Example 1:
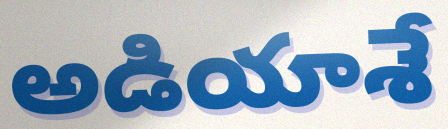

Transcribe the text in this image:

అడియాశే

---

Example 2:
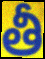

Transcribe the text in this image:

తీ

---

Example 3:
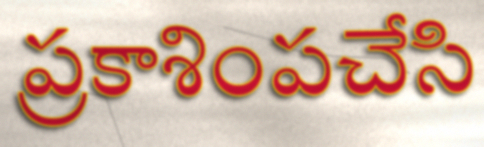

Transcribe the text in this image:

ప్రకాశింపచేసి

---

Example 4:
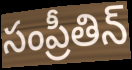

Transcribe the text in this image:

సంప్రీతిన్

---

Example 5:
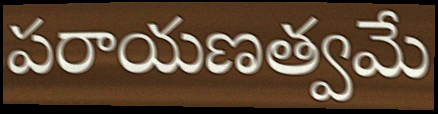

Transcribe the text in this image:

పరాయణత్వమే